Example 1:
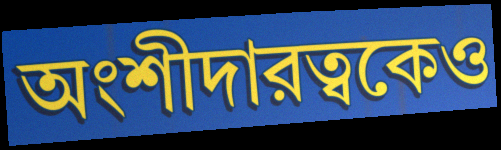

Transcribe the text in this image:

অংশীদারত্বকেও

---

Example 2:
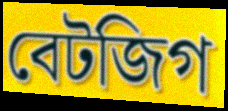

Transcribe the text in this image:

বেটজিগ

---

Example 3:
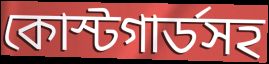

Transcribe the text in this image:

কোস্টগার্ডসহ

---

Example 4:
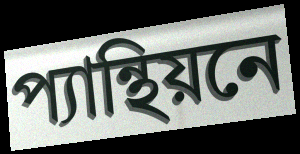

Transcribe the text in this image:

প্যান্থিয়নে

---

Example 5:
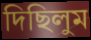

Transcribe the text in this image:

দিছিলুম